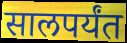
सालपर्यंत